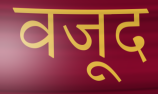
वजूद